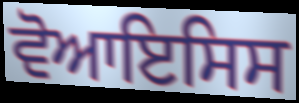
ਵੋਆਇਸਿਸ